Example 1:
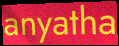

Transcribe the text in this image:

anyatha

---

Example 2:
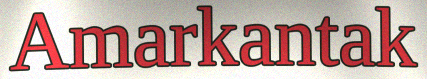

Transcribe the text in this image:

Amarkantak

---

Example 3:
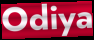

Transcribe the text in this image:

Odiya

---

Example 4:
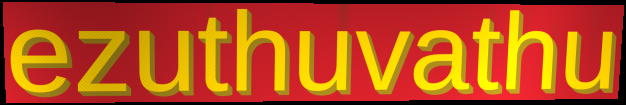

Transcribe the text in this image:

ezuthuvathu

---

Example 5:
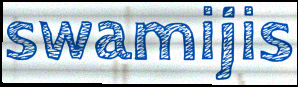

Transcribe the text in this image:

swamijis